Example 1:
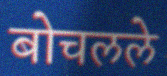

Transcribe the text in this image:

बोचलले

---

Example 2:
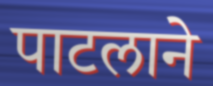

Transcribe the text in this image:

पाटलाने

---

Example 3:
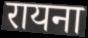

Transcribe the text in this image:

रायना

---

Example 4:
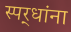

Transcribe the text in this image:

स्पर्धांना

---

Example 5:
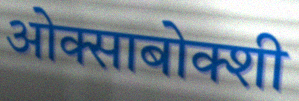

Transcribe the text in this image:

ओक्साबोक्शी